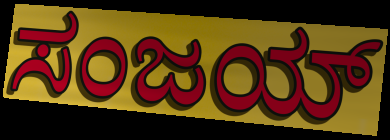
ಸಂಜಯ್